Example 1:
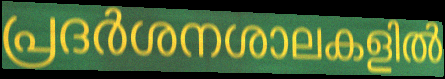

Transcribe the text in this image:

പ്രദർശനശാലകളിൽ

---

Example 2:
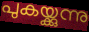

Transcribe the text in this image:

പുകയ്ക്കുന്നു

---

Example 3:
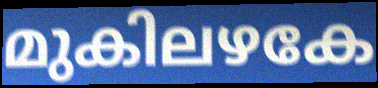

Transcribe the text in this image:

മുകിലഴകേ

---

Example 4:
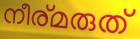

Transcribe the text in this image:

നീര്മരുത്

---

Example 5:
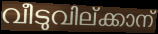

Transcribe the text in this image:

വീടുവില്ക്കാന്